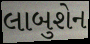
લાબુશેન